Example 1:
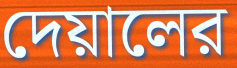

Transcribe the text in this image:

দেয়ালের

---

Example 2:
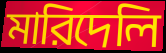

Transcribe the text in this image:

মারিদেলি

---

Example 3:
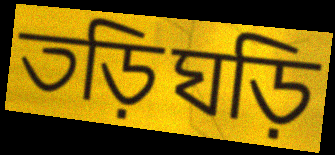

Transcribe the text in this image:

তড়িঘড়ি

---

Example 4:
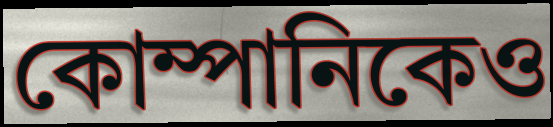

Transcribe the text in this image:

কোম্পানিকেও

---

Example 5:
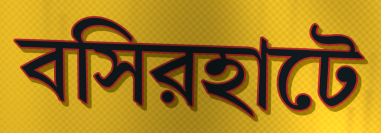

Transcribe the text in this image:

বসিরহাটে